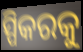
ସ୍ପିକରକୁ